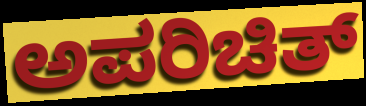
ಅಪರಿಚಿತ್